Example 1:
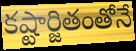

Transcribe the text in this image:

కష్టార్జితంతోనే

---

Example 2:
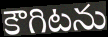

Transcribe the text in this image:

కౌగిటను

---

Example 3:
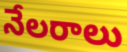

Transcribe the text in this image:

నేలరాలు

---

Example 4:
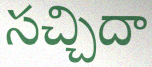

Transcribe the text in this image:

సచ్చిదా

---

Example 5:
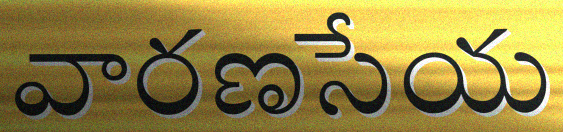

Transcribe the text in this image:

వారణసేయ